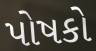
પોષકો